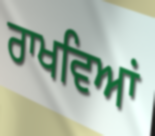
ਰਾਖਵਿਆਂ